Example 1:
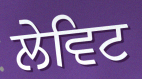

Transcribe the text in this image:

ਲੇਵਿਟ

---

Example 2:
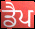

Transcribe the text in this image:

ਡੈਪ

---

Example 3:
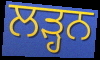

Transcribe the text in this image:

ਲੜ੍ਹਨ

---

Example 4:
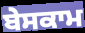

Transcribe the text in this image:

ਬੇਸਕਾਮ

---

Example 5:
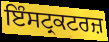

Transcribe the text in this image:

ਇੰਸਟ੍ਰਕਟਰਜ਼